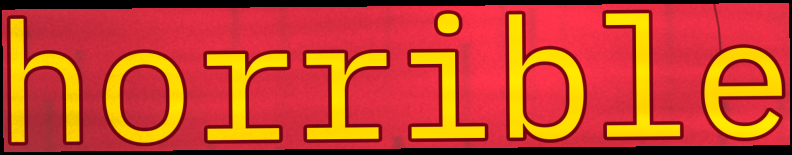
horrible